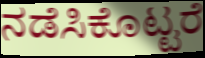
ನಡೆಸಿಕೊಟ್ಟರೆ